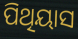
ପିଥିୟାସ